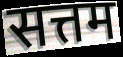
सत्तम